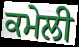
ਕਮੇਲੀ